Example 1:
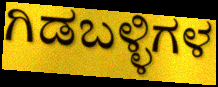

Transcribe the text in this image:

ಗಿಡಬಳ್ಳಿಗಳ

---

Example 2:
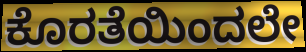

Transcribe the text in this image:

ಕೊರತೆಯಿಂದಲೇ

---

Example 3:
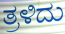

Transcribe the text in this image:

ತ್ರಳಿದು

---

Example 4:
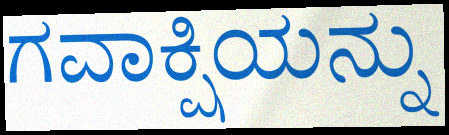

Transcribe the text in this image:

ಗವಾಕ್ಷಿಯನ್ನು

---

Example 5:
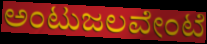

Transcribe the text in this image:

ಅಂಟುಜಲವೇಂಟೆ